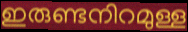
ഇരുണ്ടനിറമുള്ള